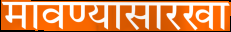
मावण्यासारखा